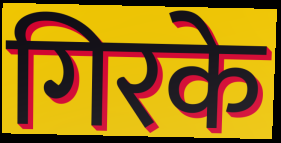
गिरके